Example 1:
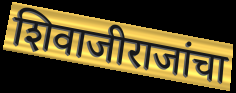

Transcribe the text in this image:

शिवाजीराजांचा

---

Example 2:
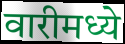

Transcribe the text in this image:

वारीमध्ये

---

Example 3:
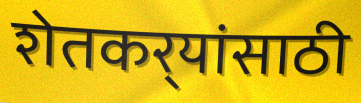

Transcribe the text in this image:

शेतकर्‍यांसाठी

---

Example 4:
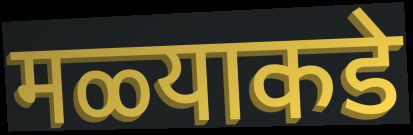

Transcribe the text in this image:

मळ्याकडे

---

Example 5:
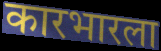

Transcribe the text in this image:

कारभारला